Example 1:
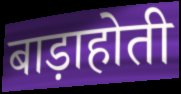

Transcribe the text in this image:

बाड़ाहोती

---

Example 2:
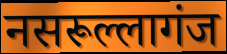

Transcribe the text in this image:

नसरूल्लागंज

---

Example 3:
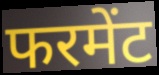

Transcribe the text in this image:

फरमेंट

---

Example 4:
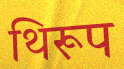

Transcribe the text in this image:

थिरूप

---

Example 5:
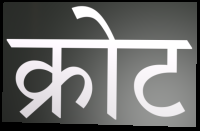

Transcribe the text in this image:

क्रोट